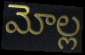
మోల్ల